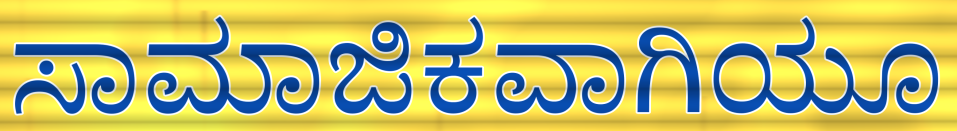
ಸಾಮಾಜಿಕವಾಗಿಯೂ